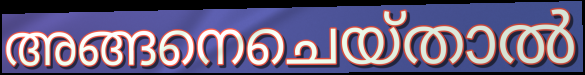
അങ്ങനെചെയ്താൽ